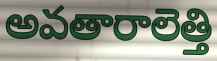
అవతారాలెత్తి